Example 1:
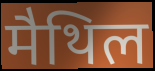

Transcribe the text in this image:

मैथिल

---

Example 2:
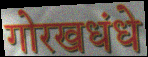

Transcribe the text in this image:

गोरखधंधे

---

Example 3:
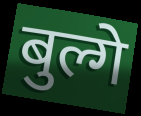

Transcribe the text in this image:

बुल्गे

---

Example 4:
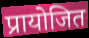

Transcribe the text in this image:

प्रायोजित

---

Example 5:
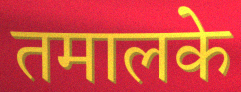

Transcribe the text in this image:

तमालके